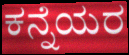
ಕನ್ನೆಯರ